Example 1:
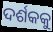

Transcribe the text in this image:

ଦର୍ଶକକୁ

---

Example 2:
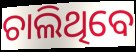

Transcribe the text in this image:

ଚାଲିଥିବେ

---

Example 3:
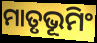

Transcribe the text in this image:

ମାତୃଭୂମିଂ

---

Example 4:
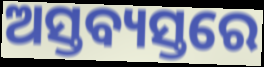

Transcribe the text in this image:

ଅସ୍ତବ୍ୟସ୍ତରେ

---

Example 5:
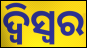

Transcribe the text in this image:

ଦ୍ଵିସ୍ଵର